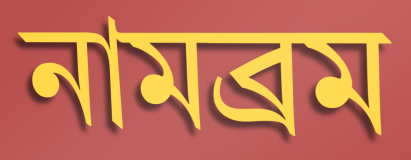
নামব্রম